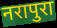
नरापुरा